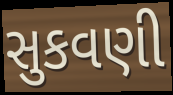
સુકવણી